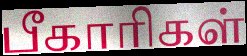
பீகாரிகள்